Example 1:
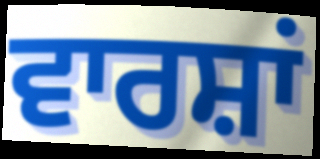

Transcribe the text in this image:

ਵਾਰਸ਼ਾਂ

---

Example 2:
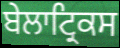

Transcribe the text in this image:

ਬੇਲਾਟ੍ਰਿਕਸ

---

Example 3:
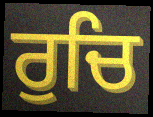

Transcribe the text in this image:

ਰੁਚਿ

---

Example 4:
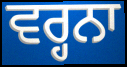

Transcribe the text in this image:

ਵਰ੍ਹਨਾ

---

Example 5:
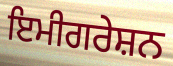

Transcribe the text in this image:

ਇਮੀਗਰੇਸ਼ਨ